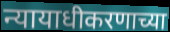
न्यायाधीकरणाच्या